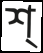
শ্